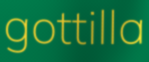
gottilla